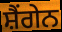
ਸ਼ੈਂਗੇਨ